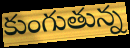
కుంగుతున్న